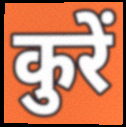
कुरें